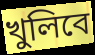
খুলিবে